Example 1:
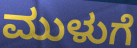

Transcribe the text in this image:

ಮುಳುಗೆ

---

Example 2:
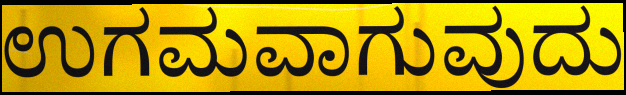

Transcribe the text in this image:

ಉಗಮವಾಗುವುದು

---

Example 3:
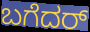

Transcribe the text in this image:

ಬಗೆದರ್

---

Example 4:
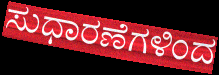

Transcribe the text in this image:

ಸುಧಾರಣೆಗಳಿಂದ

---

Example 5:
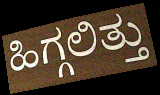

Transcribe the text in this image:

ಹಿಗ್ಗಲಿತ್ತು